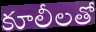
కూలీలతో